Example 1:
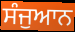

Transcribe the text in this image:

ਸੰਜੁਆਨ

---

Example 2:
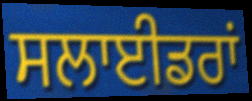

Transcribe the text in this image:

ਸਲਾਈਡਰਾਂ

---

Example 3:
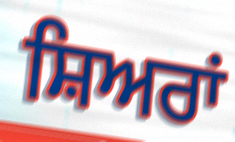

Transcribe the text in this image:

ਸ਼ਿਅਰਾਂ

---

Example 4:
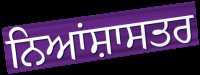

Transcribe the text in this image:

ਨਿਆਂਸ਼ਾਸਤਰ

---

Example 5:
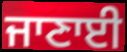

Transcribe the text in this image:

ਜਾਣਾਈ